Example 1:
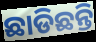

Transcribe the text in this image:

ଛାଡିଛନ୍ତି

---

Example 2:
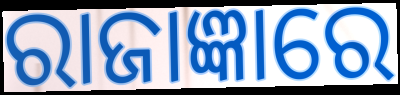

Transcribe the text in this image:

ରାଜାଜ୍ଞାରେ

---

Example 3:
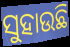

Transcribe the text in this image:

ସୁହାଉଛି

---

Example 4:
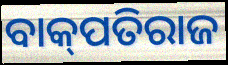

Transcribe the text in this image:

ବାକ୍‌ପତିରାଜ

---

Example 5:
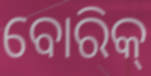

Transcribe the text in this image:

ବୋରିକ୍